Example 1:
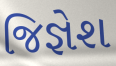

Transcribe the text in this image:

જિજ્ઞેશ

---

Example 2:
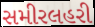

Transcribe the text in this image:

સમીરલહરી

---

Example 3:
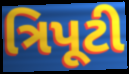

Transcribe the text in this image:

ત્રિપૂટી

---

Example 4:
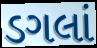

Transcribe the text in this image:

ડગલાં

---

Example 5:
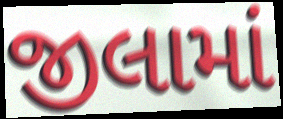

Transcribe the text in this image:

જીલામાં